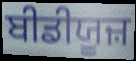
ਬੀਡੀਯੂਜ਼